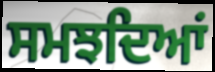
ਸਮਝਦਿਆਂ